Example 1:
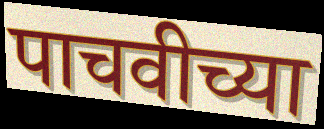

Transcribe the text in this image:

पाचवीच्या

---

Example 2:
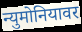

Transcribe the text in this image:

न्युमोनियावर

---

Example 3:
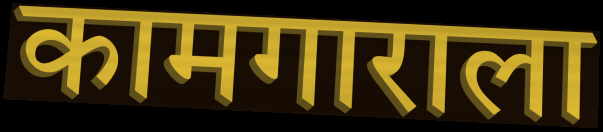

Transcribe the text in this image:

कामगाराला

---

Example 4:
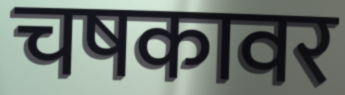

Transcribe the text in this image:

चषकावर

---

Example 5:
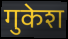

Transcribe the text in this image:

गुकेश